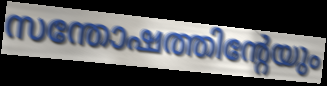
സന്തോഷത്തിന്റേയും